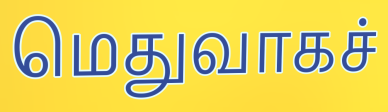
மெதுவாகச்